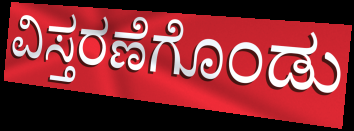
ವಿಸ್ತರಣೆಗೊಂಡು